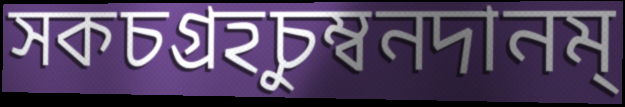
সকচগ্রহচুম্বনদানম্